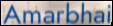
Amarbhai